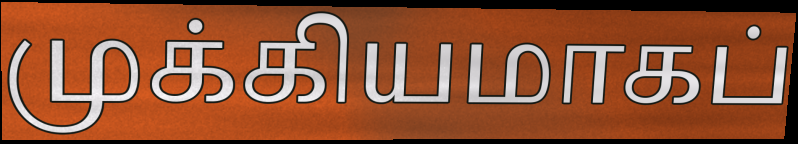
முக்கியமாகப்